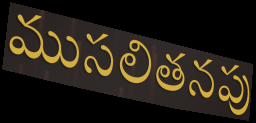
ముసలితనపు